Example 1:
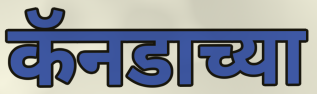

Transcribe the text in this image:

कॅनडाच्या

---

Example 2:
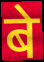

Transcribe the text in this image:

बे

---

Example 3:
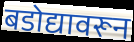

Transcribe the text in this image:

बडोद्यावरून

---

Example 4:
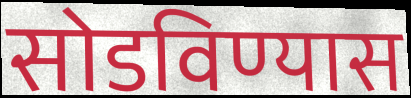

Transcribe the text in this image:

सोडविण्यास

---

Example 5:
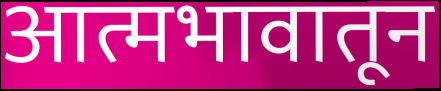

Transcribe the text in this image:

आत्मभावातून